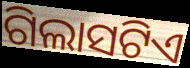
ଗିଲାସଟିଏ